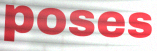
poses